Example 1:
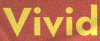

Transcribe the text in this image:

Vivid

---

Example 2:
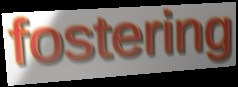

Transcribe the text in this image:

fostering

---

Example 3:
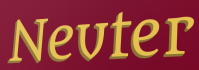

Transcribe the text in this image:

Neuter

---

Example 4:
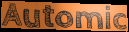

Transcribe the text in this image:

Automic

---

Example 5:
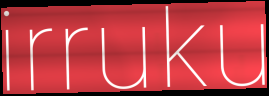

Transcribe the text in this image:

irruku